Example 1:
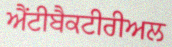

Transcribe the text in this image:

ਐਂਟੀਬੈਕਟੀਰੀਅਲ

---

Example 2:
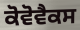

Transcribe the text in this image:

ਕੋਵੋਵੈਕਸ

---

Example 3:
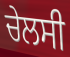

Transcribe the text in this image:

ਚੇਲਸੀ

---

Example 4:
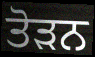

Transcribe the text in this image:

ਤੋੜਨ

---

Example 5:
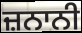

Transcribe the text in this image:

ਜ਼ਨਾਨੀ